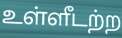
உள்ளீடற்ற